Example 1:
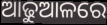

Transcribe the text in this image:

ଆଢୁଆଳରେ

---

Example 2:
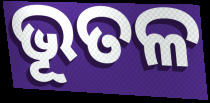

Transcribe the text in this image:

ଭୂତଳ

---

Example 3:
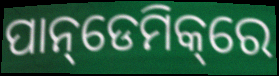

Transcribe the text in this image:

ପାନ୍‌ଡେମିକ୍‌ରେ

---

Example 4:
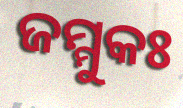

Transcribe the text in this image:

ଜମ୍ମୁକଃ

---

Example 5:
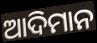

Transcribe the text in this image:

ଆଦିମାନ